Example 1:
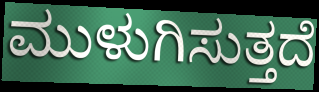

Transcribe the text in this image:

ಮುಳುಗಿಸುತ್ತದೆ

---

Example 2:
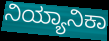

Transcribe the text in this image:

ನಿಯ್ಯಾನಿಕಾ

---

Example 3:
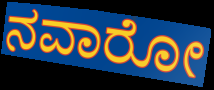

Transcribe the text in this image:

ನವಾರೋ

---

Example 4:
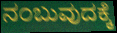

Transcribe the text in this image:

ನಂಬುವುದಕ್ಕೆ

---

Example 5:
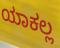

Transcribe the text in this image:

ಯಾಕಲ್ಲ